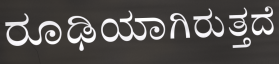
ರೂಢಿಯಾಗಿರುತ್ತದೆ